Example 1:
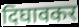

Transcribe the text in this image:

दिघावकर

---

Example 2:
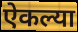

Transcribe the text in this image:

ऐकल्या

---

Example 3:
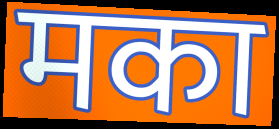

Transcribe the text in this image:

मका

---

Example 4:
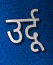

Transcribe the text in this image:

उर्दू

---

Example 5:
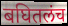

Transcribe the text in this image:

बघितलंच